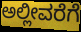
ಅಲ್ಲೀವರೆಗೆ